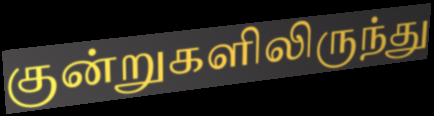
குன்றுகளிலிருந்து